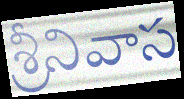
శ్రీనివాస